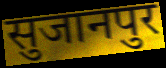
सुजानपुर